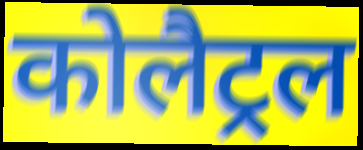
कोलैट्रल